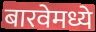
बारवेमध्ये